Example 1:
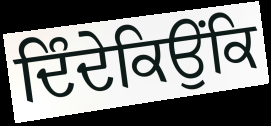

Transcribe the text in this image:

ਦਿੰਦੇਕਿਉਂਕਿ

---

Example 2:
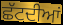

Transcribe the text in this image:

ਛੱਟਦੀਆਂ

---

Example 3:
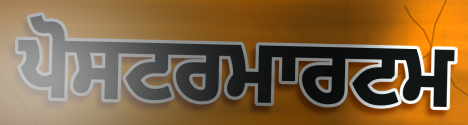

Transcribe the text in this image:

ਪੋਸਟਰਮਾਰਟਮ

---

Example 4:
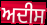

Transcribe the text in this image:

ਅਦੀਸ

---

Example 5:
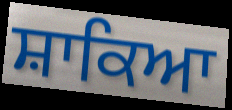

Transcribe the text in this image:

ਸ਼ਾਕਿਆ